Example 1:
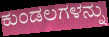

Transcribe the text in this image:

ಕುಂಡಲಗಳನ್ನು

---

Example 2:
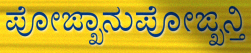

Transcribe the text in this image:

ಪೋಙ್ಖಾನುಪೋಙ್ಖನ್ತಿ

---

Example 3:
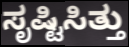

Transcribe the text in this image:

ಸೃಷ್ಟಿಸಿತ್ತು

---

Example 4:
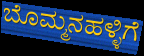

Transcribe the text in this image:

ಬೊಮ್ಮನಹಳ್ಳಿಗೆ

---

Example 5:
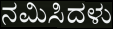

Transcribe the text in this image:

ನಮಿಸಿದಳು